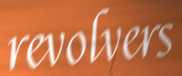
revolvers